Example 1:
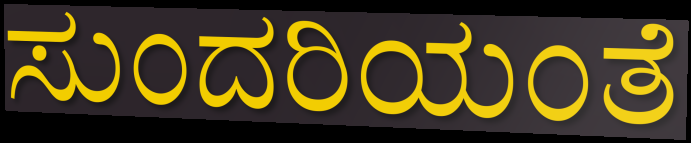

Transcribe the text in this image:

ಸುಂದರಿಯಂತೆ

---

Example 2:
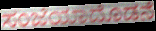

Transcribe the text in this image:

ಸಂಜೆಯಾದೊಡನೆ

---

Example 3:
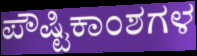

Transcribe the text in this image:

ಪೌಷ್ಟಿಕಾಂಶಗಳ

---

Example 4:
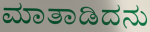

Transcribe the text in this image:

ಮಾತಾಡಿದನು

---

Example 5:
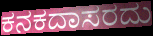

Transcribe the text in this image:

ಕನಕದಾಸರದು